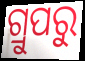
ଗ୍ରୁପରୁ